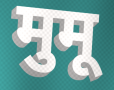
मुमू